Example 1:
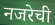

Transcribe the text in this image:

नजरेची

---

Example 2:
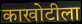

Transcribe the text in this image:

काखोटीला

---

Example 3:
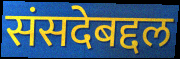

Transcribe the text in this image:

संसदेबद्दल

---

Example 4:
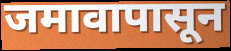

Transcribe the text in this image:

जमावापासून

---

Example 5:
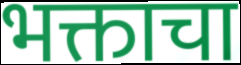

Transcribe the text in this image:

भक्ताचा